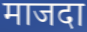
माजदा